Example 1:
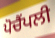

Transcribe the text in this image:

ਪੋਚੈਂਪਲੀ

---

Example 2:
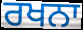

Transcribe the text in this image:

ਰਖਨਾ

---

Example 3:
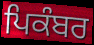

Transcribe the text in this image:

ਪਿਕੰਬਰ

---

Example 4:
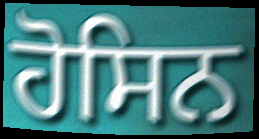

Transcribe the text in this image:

ਹੋਸਿਨ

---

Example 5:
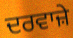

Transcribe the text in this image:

ਦਰਵਾਜ਼ੇ